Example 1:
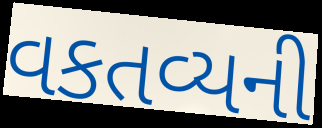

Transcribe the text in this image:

વકતવ્યની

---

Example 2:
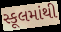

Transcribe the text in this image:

સ્કૂલમાંથી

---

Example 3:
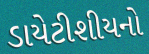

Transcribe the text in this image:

ડાયેટીશીયનો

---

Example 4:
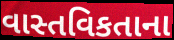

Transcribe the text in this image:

વાસ્તવિકતાના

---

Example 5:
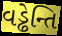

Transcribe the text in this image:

વડ્ઢેન્તિ